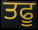
ਤਫੂ